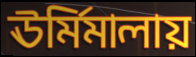
ঊর্মিমালায়